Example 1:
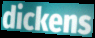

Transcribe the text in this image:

dickens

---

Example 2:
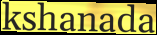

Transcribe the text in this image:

kshanada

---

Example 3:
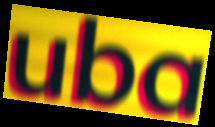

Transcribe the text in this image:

uba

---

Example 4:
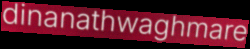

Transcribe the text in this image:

dinanathwaghmare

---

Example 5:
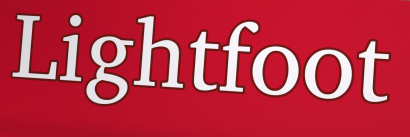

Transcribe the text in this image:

Lightfoot